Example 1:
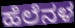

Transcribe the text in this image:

ಹೆಲೆನಳ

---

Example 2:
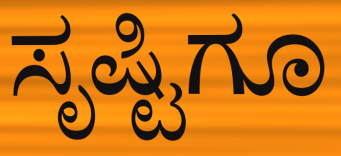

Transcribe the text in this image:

ಸೃಷ್ಟಿಗೂ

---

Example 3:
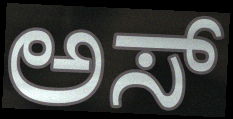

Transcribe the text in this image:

ಅಸ್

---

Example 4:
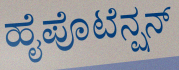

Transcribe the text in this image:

ಹೈಪೊಟೆನ್ಷನ್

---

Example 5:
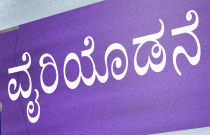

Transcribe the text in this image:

ವೈರಿಯೊಡನೆ